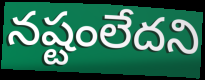
నష్టంలేదని